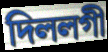
দিললগী